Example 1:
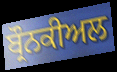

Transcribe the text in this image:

ਬ੍ਰੌਨਕੀਅਲ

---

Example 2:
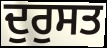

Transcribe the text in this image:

ਦੁਰੁਸਤ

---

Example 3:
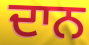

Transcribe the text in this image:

ਦਾਨ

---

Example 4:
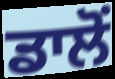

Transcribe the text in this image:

ਡਾਲੋਂ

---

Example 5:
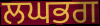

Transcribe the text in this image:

ਲਘਭਗ